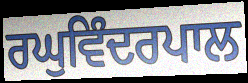
ਰਘੁਵਿੰਦਰਪਾਲ